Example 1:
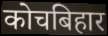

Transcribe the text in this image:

कोचबिहार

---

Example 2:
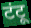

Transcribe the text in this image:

टंटू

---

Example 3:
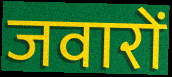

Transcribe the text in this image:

जवारों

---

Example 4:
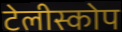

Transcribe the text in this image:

टेलीस्‍कोप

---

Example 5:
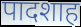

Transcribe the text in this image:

पादशाह